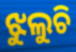
ଝୁଲୁଚି